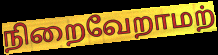
நிறைவேறாமற்